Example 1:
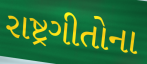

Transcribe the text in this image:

રાષ્ટ્રગીતોના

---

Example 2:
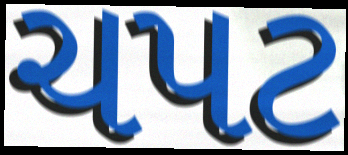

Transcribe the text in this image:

ચપટ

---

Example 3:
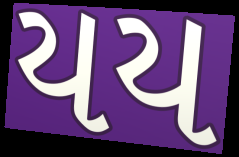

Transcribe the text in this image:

યય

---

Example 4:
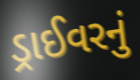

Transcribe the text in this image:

ડ્રાઈવરનું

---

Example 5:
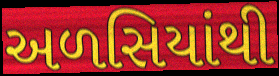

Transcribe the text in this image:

અળસિયાંથી